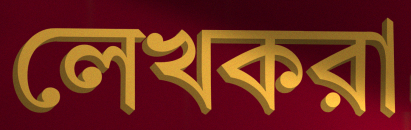
লেখকরা